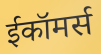
ईकॉमर्स